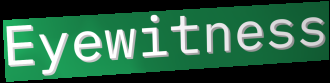
Eyewitness